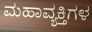
ಮಹಾವ್ಯಕ್ತಿಗಳ